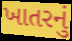
ખાતરનું